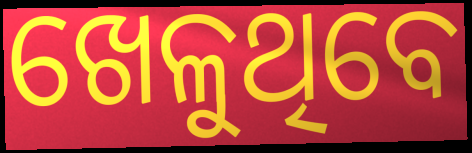
ଖେଳୁଥିବେ